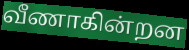
வீணாகின்றன